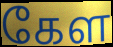
கேள